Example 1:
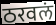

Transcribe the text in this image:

ठरवलं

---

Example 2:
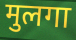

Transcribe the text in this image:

मुलगा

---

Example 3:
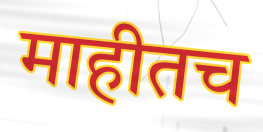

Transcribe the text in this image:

माहीतच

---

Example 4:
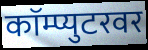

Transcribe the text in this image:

कॉम्प्युटरवर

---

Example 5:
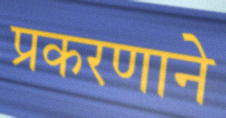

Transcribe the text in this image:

प्रकरणाने